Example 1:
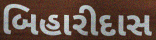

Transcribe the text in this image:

બિહારીદાસ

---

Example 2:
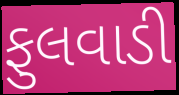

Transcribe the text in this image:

ફુલવાડી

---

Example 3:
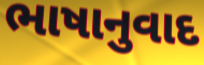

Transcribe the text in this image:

ભાષાનુવાદ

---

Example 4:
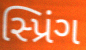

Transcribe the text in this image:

સ્પ્રિંગ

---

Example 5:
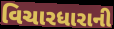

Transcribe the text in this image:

વિચારધારાની